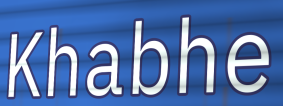
Khabhe